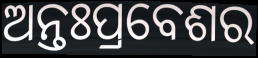
ଅନ୍ତଃପ୍ରବେଶର